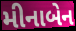
મીનાબેન